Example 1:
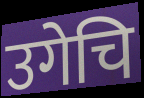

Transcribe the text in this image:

उगेचि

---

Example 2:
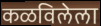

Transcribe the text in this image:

कळविलेला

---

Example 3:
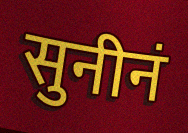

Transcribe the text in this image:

सुनीनं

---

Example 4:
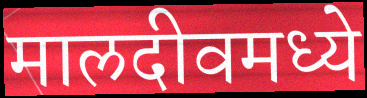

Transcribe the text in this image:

मालदीवमध्ये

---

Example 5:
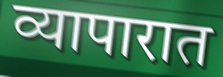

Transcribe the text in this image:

व्यापारात